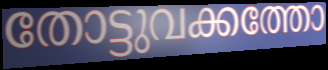
തോട്ടുവക്കത്തോ